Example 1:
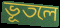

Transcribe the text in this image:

ভূতলে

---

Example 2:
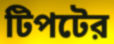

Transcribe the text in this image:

টিপটের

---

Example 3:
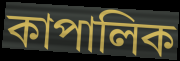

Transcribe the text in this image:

কাপালিক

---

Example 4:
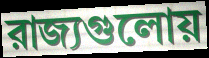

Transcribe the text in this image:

রাজ্যগুলোয়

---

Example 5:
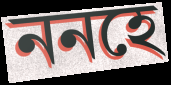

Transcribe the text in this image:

ননহে